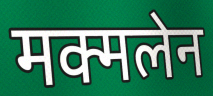
मक्मलेन